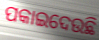
ପକାଇଦେଉଛି